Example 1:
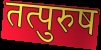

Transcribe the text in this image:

तत्पुरुष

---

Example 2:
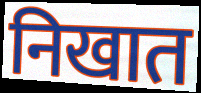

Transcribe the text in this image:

निखात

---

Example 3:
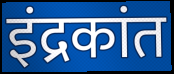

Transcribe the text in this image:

इंद्रकांत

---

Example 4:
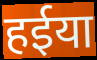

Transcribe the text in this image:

हईया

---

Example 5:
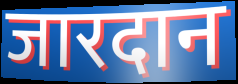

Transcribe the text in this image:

जारदान